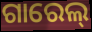
ଗାରେଲ୍